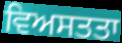
ਵਿਅਸਤਤਾ